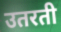
उतरती